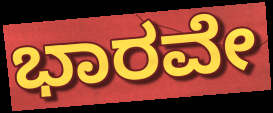
ಭಾರವೇ